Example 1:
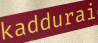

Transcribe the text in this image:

kaddurai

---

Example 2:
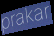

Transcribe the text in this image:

prakar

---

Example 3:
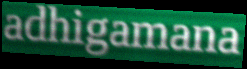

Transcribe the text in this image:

adhigamana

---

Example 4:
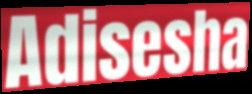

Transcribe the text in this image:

Adisesha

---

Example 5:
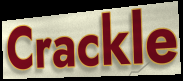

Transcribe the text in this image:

Crackle